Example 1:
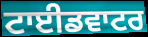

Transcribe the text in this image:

ਟਾਈਡਵਾਟਰ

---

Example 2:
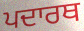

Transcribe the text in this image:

ਪਦਾਰਥ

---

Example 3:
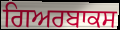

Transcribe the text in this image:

ਗਿਅਰਬਾਕਸ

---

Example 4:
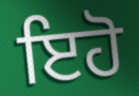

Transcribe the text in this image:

ਇਹੋ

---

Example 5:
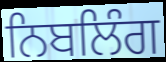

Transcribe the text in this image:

ਨਿਬਲਿੰਗ